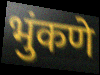
भुंकणे